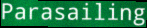
Parasailing